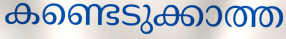
കണ്ടെടുക്കാത്ത